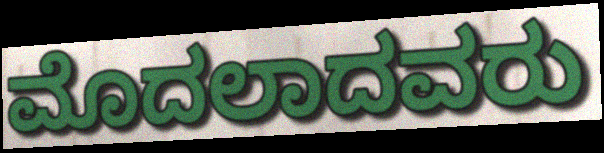
ಮೊದಲಾದವರು